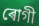
ৰোগী